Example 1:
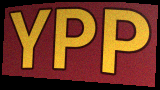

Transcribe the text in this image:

YPP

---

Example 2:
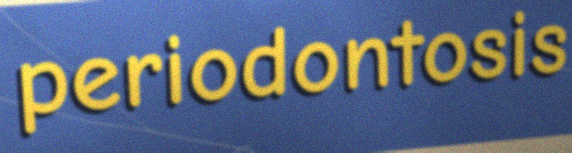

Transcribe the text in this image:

periodontosis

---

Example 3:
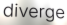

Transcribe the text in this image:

diverge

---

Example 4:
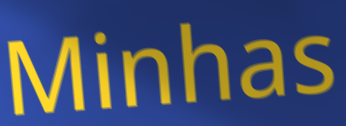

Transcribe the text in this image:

Minhas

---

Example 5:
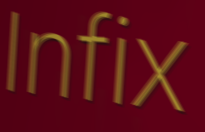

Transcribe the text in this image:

Infix